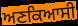
ਅਣਕਿਆਸੀ